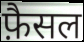
फ़ैसल